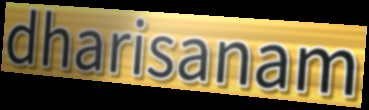
dharisanam